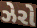
ઝેરો